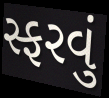
સ્ફરવું